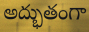
అద్భుతంగా